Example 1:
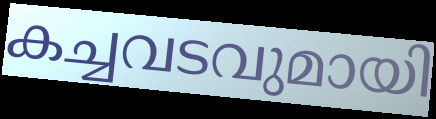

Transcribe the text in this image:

കച്ചവടവുമായി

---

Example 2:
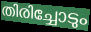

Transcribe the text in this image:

തിരിച്ചോടും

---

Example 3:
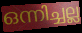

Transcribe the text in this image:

ഒന്നിച്ചല്ല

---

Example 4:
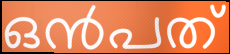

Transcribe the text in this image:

ഒൻപത്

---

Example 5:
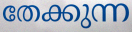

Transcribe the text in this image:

തേക്കുന്ന